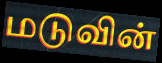
மடுவின்